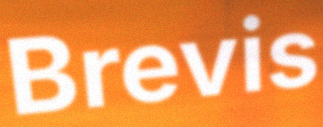
Brevis